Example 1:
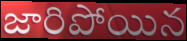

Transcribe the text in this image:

జారిపోయిన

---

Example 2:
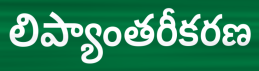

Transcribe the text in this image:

లిప్యాంతరీకరణ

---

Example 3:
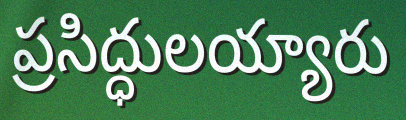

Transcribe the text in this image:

ప్రసిద్ధులయ్యారు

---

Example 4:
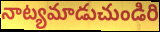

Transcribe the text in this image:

నాట్యమాడుచుండిరి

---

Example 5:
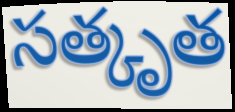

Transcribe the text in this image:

సత్కృత